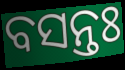
ବସନ୍ତଃ